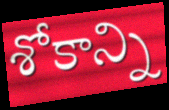
శోకాన్ని